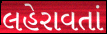
લહેરાવતાં